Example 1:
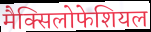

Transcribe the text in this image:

मैक्सिलोफेशियल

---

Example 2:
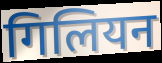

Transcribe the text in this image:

गिलियन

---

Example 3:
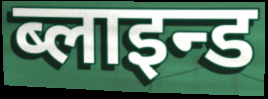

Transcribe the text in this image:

ब्लाइन्ड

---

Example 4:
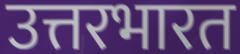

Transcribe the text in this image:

उत्तरभारत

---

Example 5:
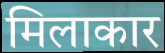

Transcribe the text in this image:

मिलाकार